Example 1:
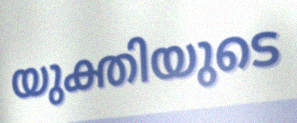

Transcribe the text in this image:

യുക്തിയുടെ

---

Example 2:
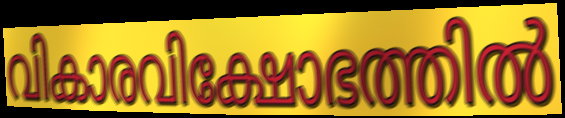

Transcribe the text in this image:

വികാരവിക്ഷോഭത്തിൽ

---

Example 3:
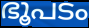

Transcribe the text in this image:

ഭൂപടം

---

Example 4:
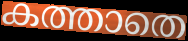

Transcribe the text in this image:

കത്താതെ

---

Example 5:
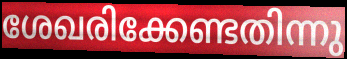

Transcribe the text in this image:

ശേഖരിക്കേണ്ടതിന്നു